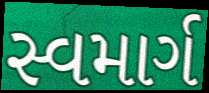
સ્વમાર્ગ